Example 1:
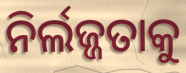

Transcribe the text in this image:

ନିର୍ଲଜ୍ଜତାକୁ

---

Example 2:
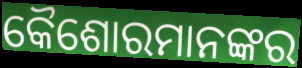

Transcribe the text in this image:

କୈଶୋରମାନଙ୍କର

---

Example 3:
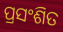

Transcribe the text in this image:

ପ୍ରସଂଶିତ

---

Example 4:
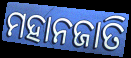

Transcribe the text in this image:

ମହାନଜାତି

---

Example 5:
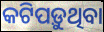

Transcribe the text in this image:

କଟିପଡ଼ୁଥିବା